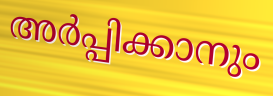
അർപ്പിക്കാനും